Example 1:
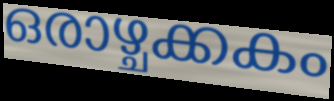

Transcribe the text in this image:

ഒരാഴ്ചക്കകം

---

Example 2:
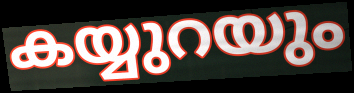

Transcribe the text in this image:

കയ്യുറയും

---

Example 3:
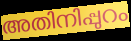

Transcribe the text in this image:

അതിനിപ്പുറം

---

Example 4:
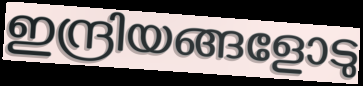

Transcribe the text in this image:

ഇന്ദ്രിയങ്ങളോടു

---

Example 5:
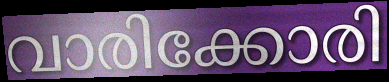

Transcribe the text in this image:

വാരിക്കോരി